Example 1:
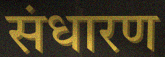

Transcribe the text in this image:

संधारण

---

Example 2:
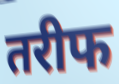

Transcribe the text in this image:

तरीफ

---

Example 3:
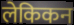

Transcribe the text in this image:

लेकिकन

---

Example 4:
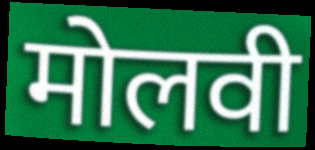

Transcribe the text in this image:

मोलवी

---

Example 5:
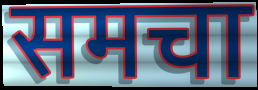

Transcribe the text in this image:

समचा